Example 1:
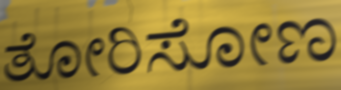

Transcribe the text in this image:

ತೋರಿಸೋಣ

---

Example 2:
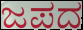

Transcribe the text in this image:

ಜಪದ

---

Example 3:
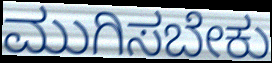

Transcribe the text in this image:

ಮುಗಿಸಬೇಕು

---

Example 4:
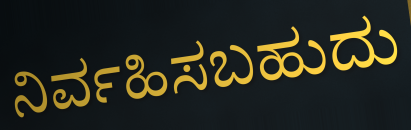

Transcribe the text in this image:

ನಿರ್ವಹಿಸಬಹುದು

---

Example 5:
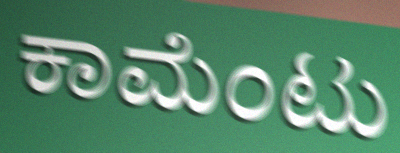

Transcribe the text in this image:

ಕಾಮೆಂಟು